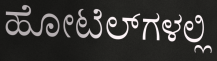
ಹೋಟೆಲ್‍ಗಳಲ್ಲಿ